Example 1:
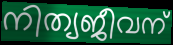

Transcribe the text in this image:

നിത്യജീവന്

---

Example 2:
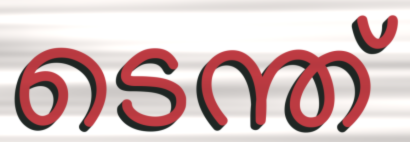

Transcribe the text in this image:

ടെന്ത്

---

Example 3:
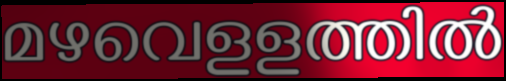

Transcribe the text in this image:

മഴവെളളത്തിൽ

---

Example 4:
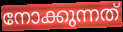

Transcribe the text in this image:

നോക്കുന്നത്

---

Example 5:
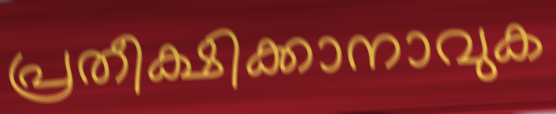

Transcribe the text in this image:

പ്രതീക്ഷിക്കാനാവുക